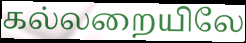
கல்லறையிலே